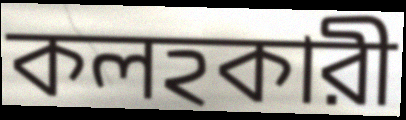
কলহকারী